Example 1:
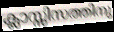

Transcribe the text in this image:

ക്ലാസ്സിസത്തിനു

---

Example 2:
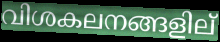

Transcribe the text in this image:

വിശകലനങ്ങളില്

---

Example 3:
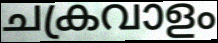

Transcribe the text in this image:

ചക്രവാളം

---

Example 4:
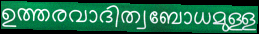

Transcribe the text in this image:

ഉത്തരവാദിത്വബോധമുള്ള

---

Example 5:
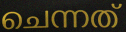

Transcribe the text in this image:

ചെന്നത്